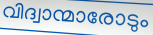
വിദ്വാന്മാരോടും